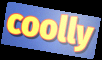
coolly